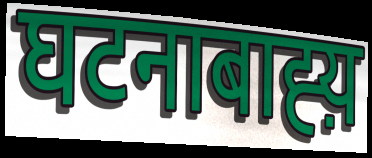
घटनाबाह्य़